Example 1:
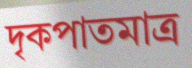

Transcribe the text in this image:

দৃকপাতমাত্র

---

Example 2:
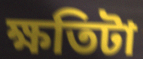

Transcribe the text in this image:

ক্ষতিটা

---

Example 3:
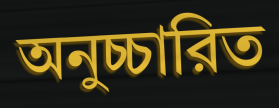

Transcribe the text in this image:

অনুচ্চারিত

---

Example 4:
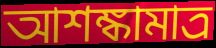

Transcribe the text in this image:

আশঙ্কামাত্র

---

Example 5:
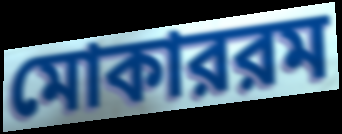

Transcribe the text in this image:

মোকাররম